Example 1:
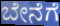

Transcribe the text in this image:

ಬೇನೆಗೆ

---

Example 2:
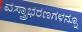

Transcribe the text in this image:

ವಸ್ತ್ರಾಭರಣಗಳನ್ನೂ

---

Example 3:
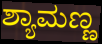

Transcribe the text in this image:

ಶ್ಯಾಮಣ್ಣ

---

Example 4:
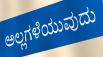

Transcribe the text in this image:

ಅಲ್ಲಗಳೆಯುವುದು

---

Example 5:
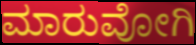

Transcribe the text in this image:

ಮಾರುವೋಗಿ